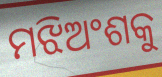
ମଝିଅଂଶକୁ